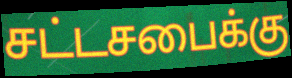
சட்டசபைக்கு